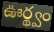
ఊర్థ్వం